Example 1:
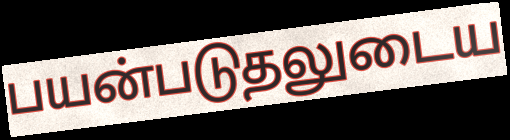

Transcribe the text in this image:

பயன்படுதலுடைய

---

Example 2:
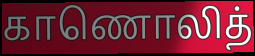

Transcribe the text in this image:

காணொலித்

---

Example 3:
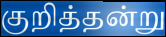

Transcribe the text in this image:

குறித்தன்று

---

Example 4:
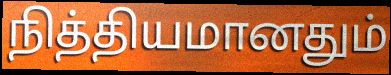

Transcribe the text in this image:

நித்தியமானதும்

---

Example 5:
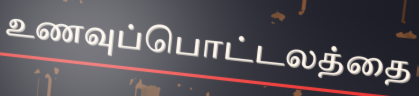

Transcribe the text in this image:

உணவுப்பொட்டலத்தை